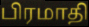
பிரமாதி